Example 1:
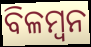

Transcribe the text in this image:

ବିଳମ୍ବନ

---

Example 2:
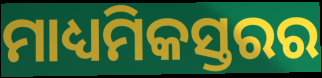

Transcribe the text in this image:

ମାଧ୍ୟମିକସ୍ତରର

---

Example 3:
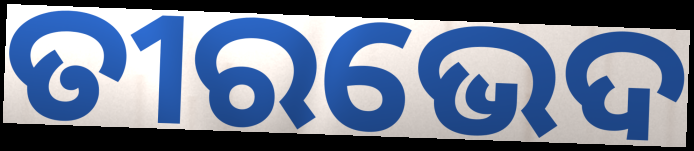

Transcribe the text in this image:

ତୀରଭେଦ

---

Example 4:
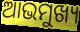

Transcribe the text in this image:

ଆଭମୁଖ୍ୟ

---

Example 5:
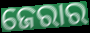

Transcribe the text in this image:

ଜେରାର